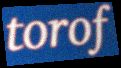
torof